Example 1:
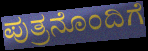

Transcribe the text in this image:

ಪುತ್ರನೊಂದಿಗೆ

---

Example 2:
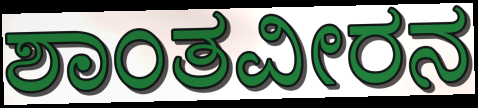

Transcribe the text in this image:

ಶಾಂತವೀರನ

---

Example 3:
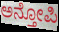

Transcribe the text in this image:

ಅನ್ತೋಪಿ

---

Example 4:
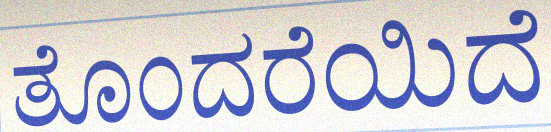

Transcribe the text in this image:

ತೊಂದರೆಯಿದೆ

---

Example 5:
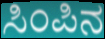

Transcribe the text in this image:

ಸಿಂಪಿನ